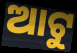
ଆଟୁ